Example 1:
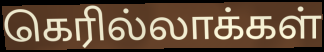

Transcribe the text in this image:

கெரில்லாக்கள்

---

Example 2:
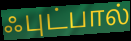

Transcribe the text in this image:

ஃபுட்பால்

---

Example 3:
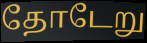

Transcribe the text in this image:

தோடேறு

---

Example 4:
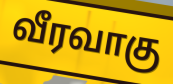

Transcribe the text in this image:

வீரவாகு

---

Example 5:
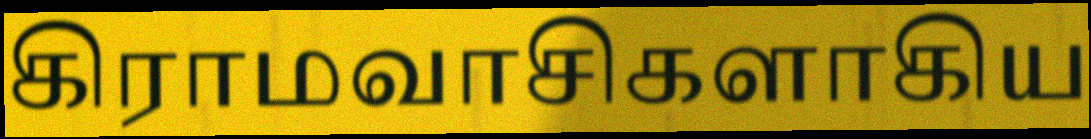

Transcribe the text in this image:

கிராமவாசிகளாகிய